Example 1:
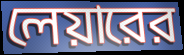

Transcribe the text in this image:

লেয়ারের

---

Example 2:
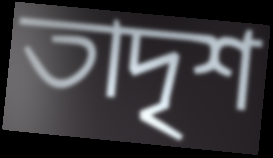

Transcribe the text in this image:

তাদৃশ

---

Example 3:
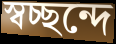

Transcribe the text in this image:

স্বচ্ছন্দে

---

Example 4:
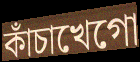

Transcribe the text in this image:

কাঁচাখেগো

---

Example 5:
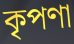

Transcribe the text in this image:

কৃপণা